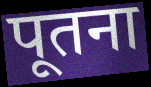
पूतना